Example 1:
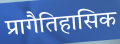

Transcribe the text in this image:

प्रागैतिहासिक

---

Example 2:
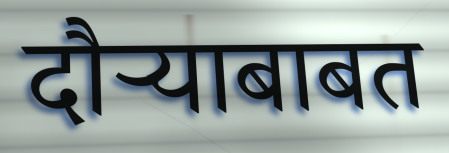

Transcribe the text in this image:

दौऱ्याबाबत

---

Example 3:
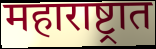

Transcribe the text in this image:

महाराष्ट्रात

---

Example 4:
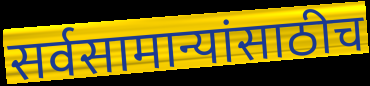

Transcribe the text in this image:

सर्वसामान्यांसाठीच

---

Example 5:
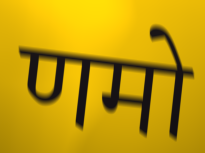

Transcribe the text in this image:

णमो